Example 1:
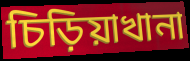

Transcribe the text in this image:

চিড়িয়াখানা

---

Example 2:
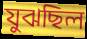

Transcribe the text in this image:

যুঝছিল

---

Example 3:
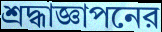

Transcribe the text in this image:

শ্রদ্ধাজ্ঞাপনের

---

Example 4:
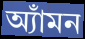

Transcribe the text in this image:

অ্যাঁমন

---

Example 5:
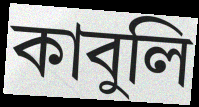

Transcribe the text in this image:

কাবুলি